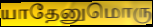
யாதேனுமொரு